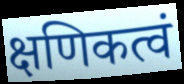
क्षणिकत्वं